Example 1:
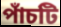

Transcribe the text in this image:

পাঁচটি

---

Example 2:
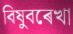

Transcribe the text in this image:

বিষুবৰেখা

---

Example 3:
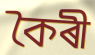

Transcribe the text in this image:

কৈৰী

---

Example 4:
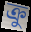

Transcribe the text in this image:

ক্ৰু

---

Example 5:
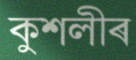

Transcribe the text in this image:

কুশলীৰ